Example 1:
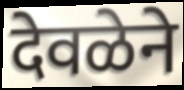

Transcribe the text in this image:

देवळेने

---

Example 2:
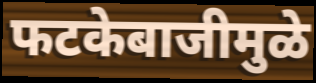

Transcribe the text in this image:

फटकेबाजीमुळे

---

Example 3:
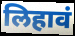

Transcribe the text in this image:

लिहावं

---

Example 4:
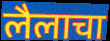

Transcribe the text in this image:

लैलाचा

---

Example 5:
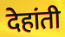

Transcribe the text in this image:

देहांती